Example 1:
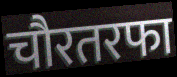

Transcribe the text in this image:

चौरतरफा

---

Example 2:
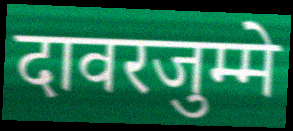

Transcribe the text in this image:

दावरजुम्मे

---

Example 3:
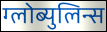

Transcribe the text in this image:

ग्लोब्युलिन्स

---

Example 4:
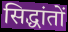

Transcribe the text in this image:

सिद्धांतों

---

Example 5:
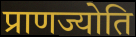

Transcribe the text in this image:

प्राणज्योति